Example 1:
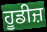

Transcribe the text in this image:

ਹੂਡੀਜ਼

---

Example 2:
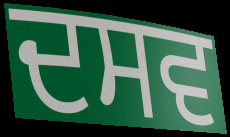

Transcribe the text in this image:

ਦਸਵ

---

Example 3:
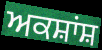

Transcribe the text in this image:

ਅਕਸ਼ਾਂਸ਼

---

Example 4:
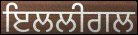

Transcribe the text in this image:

ਇਲਲੀਗਲ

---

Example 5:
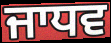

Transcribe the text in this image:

ਜਾਧਵ